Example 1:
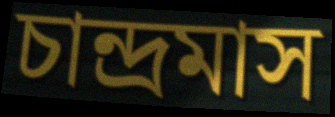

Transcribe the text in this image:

চান্দ্রমাস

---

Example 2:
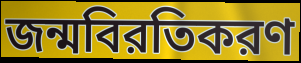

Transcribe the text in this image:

জন্মবিরতিকরণ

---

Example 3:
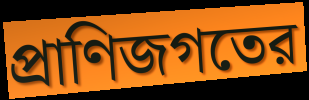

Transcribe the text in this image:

প্রাণিজগতের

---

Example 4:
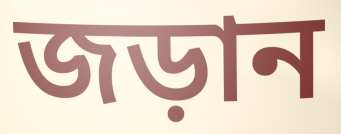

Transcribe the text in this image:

জড়ান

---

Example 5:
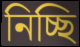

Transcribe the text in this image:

নিচ্ছি